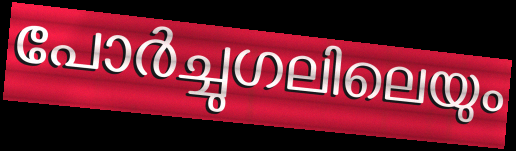
പോർച്ചുഗലിലെയും